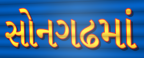
સોનગઢમાં